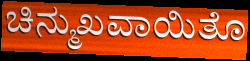
ಚಿನ್ಮುಖವಾಯಿತೊ